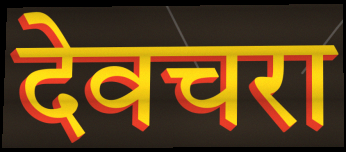
देवचरा